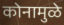
कोनामुळे